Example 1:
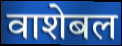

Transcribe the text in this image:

वाशेबल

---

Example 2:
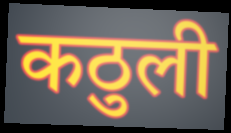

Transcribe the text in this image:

कठुली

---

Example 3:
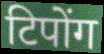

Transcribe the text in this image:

टिपोंग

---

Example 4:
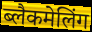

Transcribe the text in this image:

ब्लैकमेलिंग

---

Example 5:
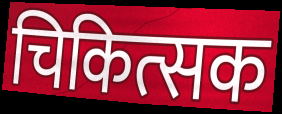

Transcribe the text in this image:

चिकित्‍सक